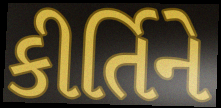
કીર્તિને